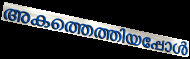
അകത്തെത്തിയപ്പോൾ